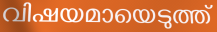
വിഷയമായെടുത്ത്